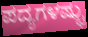
ಪದ್ಯಗಳಷ್ಟು